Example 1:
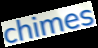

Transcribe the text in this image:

chimes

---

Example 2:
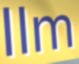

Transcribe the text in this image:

Ilm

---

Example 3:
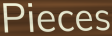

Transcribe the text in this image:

Pieces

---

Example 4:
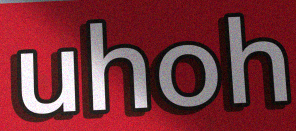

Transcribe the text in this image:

uhoh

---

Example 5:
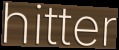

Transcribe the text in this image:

hitter